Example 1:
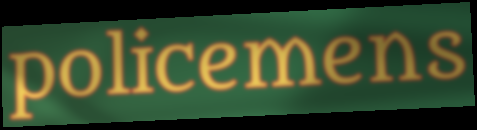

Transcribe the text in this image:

policemens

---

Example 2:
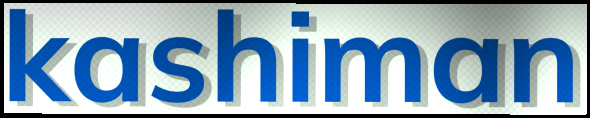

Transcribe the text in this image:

kashiman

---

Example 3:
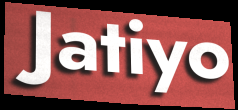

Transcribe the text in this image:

Jatiyo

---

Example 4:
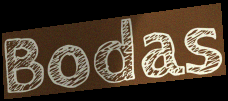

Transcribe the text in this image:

Bodas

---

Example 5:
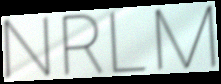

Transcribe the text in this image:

NRLM